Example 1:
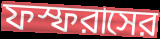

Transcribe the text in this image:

ফস্ফরাসের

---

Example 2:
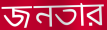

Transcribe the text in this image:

জনতার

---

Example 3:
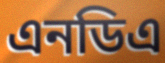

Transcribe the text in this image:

এনডিএ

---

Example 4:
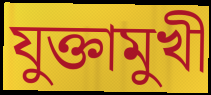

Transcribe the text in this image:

যুক্তামুখী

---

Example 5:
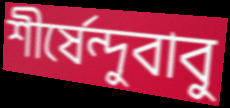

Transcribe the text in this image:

শীর্ষেন্দুবাবু